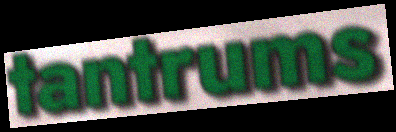
tantrums